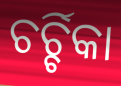
ଚର୍ଚ୍ଚିକା